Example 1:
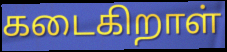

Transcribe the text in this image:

கடைகிறாள்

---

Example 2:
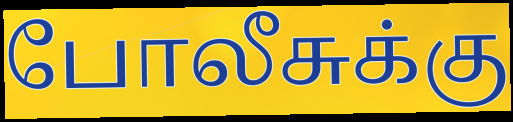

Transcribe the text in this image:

போலீசுக்கு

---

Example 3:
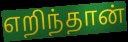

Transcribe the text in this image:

எறிந்தான்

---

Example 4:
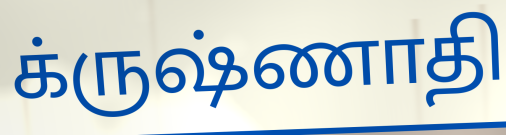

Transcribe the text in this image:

க்ருஷ்ணாதி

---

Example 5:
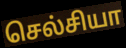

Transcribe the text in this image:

செல்சியா